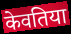
केवतिया